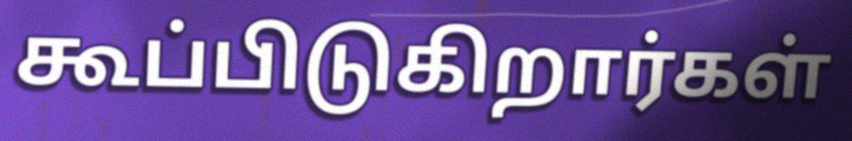
கூப்பிடுகிறார்கள்